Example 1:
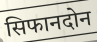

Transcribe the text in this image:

सिफानदोन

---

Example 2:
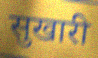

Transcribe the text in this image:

सुखारी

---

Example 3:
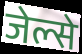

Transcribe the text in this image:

जेल्से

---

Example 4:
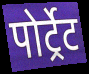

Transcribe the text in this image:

पोर्ट्रेट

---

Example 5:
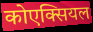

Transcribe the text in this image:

कोएक्सियल